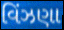
વિંઝણા